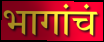
भागांचं